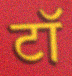
टॉ